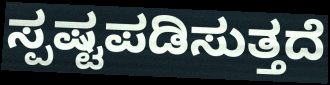
ಸ್ಪಷ್ಟಪಡಿಸುತ್ತದೆ